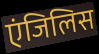
एंजिलिस